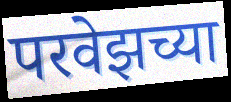
परवेझच्या